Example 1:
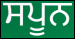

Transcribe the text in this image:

ਸਪੂਨ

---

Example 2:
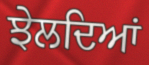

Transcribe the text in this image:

ਝੇਲਦਿਆਂ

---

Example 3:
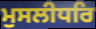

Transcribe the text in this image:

ਮੁਸਲੀਧਰਿ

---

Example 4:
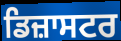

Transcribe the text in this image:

ਡਿਜ਼ਾਸਟਰ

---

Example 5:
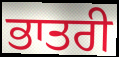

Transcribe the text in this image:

ਭਾਤਰੀ